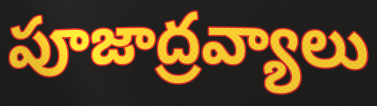
పూజాద్రవ్యాలు